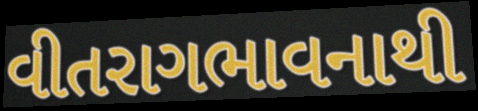
વીતરાગભાવનાથી